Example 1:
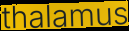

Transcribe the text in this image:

thalamus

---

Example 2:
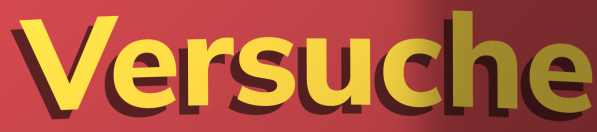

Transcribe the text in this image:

Versuche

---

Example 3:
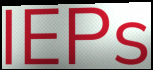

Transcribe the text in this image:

IEPs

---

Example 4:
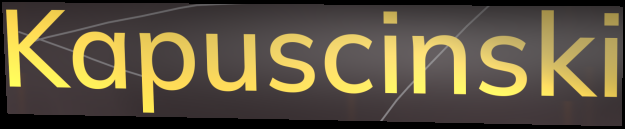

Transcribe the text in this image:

Kapuscinski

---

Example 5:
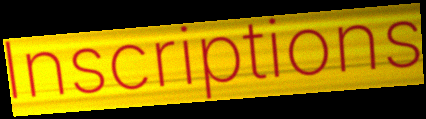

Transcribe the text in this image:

Inscriptions